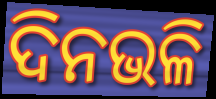
ଦିନଭଳି